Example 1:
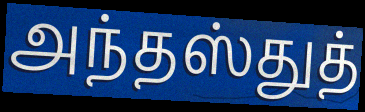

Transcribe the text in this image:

அந்தஸ்துத்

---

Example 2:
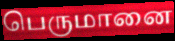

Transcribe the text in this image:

பெருமானை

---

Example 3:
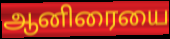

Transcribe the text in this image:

ஆனிரையை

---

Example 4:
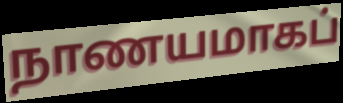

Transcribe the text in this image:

நாணயமாகப்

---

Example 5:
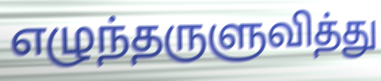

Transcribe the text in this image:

எழுந்தருளுவித்து